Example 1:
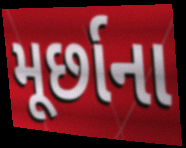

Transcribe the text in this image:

મૂર્છાના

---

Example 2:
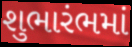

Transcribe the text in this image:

શુભારંભમાં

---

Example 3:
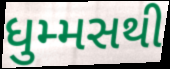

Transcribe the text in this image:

ધુમ્મસથી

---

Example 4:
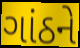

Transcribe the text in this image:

ગાંઠને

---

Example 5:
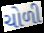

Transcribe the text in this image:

ચોળી